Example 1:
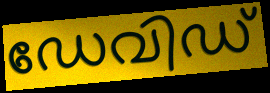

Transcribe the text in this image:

ഡേവിഡ്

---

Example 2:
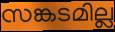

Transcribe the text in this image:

സങ്കടമില്ല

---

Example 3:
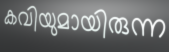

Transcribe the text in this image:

കവിയുമായിരുന്ന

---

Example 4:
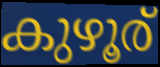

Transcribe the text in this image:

കുഴൂര്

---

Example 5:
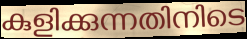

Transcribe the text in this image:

കുളിക്കുന്നതിനിടെ